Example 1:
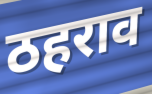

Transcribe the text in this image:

ठहराव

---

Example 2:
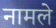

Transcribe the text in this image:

नामले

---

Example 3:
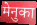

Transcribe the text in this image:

मेनुका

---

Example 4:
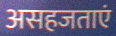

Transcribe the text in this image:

असहजताएं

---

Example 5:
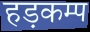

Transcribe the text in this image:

हड़कम्प